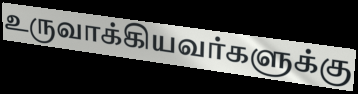
உருவாக்கியவர்களுக்கு